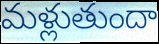
మళ్లుతుందా